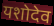
यशोदेव